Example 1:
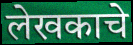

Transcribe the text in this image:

लेखकाचे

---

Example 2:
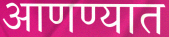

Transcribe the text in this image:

आणण्यात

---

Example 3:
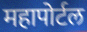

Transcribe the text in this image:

महापोर्टल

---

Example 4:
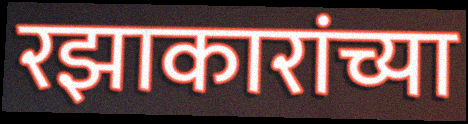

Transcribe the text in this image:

रझाकारांच्या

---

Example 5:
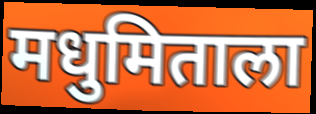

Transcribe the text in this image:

मधुमिताला